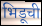
भिडूची